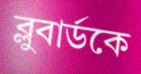
ব্লুবার্ডকে